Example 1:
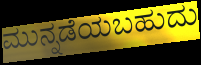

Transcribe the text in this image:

ಮುನ್ನಡೆಯಬಹುದು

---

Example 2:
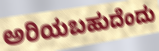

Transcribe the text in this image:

ಅರಿಯಬಹುದೆಂದು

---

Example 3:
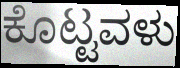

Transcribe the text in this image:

ಕೊಟ್ಟವಳು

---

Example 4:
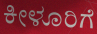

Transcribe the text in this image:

ಕೀಳೂರಿಗೆ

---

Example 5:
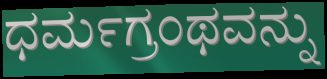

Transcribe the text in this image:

ಧರ್ಮಗ್ರಂಥವನ್ನು